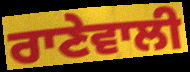
ਰਾਣੇਵਾਲੀ